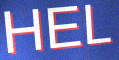
HEL